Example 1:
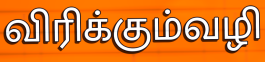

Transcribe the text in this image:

விரிக்கும்வழி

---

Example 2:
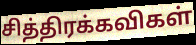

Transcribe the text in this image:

சித்திரக்கவிகள்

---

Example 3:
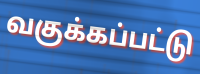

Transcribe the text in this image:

வகுக்கப்பட்டு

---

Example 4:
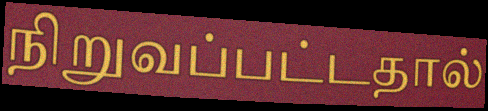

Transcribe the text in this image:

நிறுவப்பட்டதால்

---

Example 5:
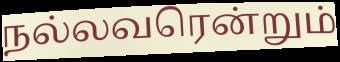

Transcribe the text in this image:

நல்லவரென்றும்